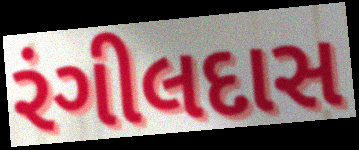
રંગીલદાસ